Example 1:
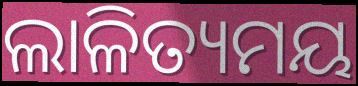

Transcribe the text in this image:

ଲାଳିତ୍ୟମୟ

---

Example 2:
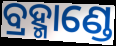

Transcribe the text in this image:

ବ୍ରହ୍ମାଣ୍ଡେ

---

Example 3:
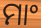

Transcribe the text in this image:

ମାଂ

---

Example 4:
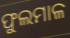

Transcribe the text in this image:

ଫୁଲମାଳ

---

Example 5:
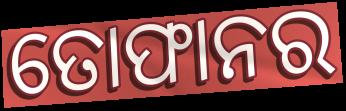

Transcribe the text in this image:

ତୋଫାନର